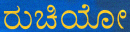
ರುಚಿಯೋ